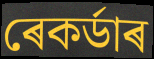
ৰেকৰ্ডাৰ